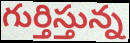
గుర్తిస్తున్న